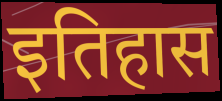
इतिहास